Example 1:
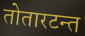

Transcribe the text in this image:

तोतारटन्त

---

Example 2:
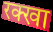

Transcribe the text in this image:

रक्‍खा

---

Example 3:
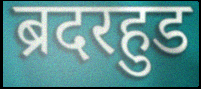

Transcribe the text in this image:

ब्रदरहुड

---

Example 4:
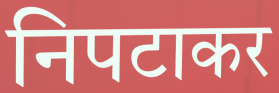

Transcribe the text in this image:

निपटाकर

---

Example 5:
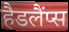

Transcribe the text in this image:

हैडलैंप्स